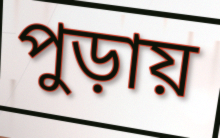
পুড়ায়